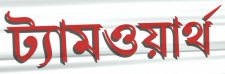
ট্যামওয়ার্থ